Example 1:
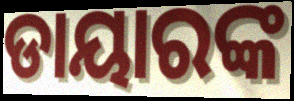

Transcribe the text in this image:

ଡାୟାରଙ୍କ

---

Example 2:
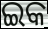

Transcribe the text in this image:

ଇକ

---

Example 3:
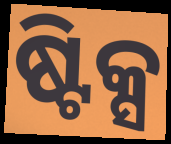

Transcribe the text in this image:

ଷ୍ଟିକ୍ସ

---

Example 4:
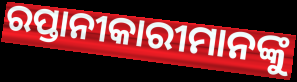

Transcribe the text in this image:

ରପ୍ତାନୀକାରୀମାନଙ୍କୁ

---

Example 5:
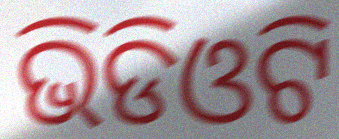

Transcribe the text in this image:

ଭିଡିଓଟି